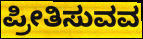
ಪ್ರೀತಿಸುವವ